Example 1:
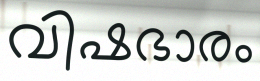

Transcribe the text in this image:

വിഷഭാരം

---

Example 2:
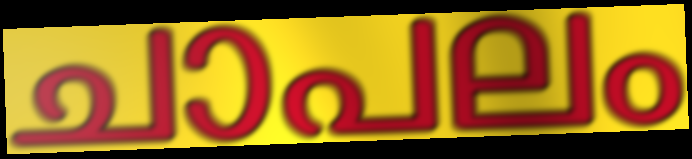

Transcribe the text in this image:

ചാപലം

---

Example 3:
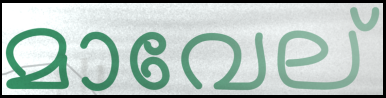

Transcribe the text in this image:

മാവേല്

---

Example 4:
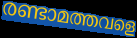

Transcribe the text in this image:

രണ്ടാമത്തവളെ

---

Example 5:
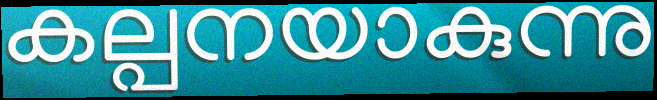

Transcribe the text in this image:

കല്പനയാകുന്നു